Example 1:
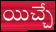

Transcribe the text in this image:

యిచ్చే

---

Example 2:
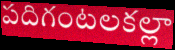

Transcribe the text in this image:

పదిగంటలకల్లా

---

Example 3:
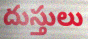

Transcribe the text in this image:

దుస్తులు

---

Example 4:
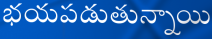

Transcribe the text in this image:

భయపడుతున్నాయి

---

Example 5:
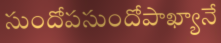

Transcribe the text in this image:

సుందోపసుందోపాఖ్యానే